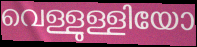
വെള്ളുള്ളിയോ